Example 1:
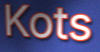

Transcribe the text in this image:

Kots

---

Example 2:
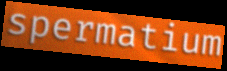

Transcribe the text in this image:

spermatium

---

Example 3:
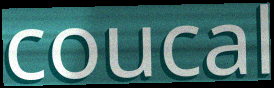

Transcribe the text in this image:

coucal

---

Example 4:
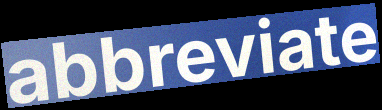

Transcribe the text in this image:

abbreviate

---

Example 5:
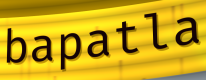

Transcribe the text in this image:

bapatla